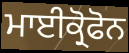
ਮਾਈਕ੍ਰੋਫੋਨ